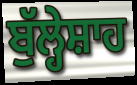
ਬੁੱਲ੍ਹੇਸ਼ਾਹ